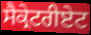
ਸੈਕ੍ਰੇਟਰੀਏਟ